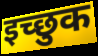
इच्‍छुक